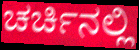
ಚರ್ಚಿನಲ್ಲಿ